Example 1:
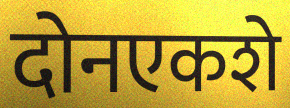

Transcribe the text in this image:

दोनएकशे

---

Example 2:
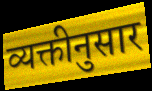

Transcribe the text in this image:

व्यक्तीनुसार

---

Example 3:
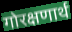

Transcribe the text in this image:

गोरक्षणार्थ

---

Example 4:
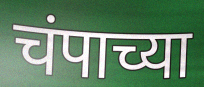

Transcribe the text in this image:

चंपाच्या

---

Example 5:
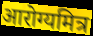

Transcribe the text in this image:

आरोग्यमित्र